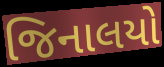
જિનાલયો